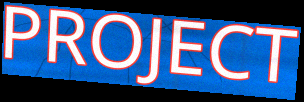
PROJECT